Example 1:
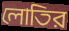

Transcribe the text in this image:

লোতির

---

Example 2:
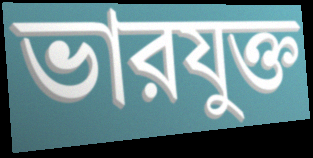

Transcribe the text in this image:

ভারযুক্ত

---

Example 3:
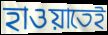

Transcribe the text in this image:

হাওয়াতেই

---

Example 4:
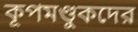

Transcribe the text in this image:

কূপমণ্ডুকদের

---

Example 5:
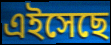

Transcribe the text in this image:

এইসেছে